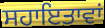
ਸਹਾਇਤਾਵਾਂ